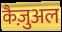
कैज़ुअल